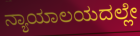
ನ್ಯಾಯಾಲಯದಲ್ಲೇ